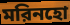
মরিনহো